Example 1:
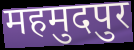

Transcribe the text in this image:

महमुदपुर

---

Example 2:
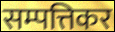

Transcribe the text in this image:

सम्पत्तिकर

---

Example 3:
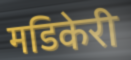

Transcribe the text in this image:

मडिकेरी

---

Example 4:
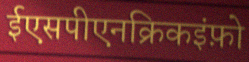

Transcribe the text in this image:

ईएसपीएनक्रिकइंफ़ो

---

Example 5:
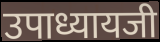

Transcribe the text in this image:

उपाध्यायजी